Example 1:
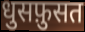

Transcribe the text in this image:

धुसफ़ुसत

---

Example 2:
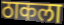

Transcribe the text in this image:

ठाकला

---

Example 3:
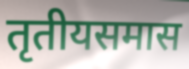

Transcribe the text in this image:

तृतीयसमास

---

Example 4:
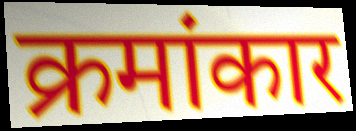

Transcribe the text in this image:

क्रमांकार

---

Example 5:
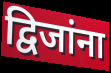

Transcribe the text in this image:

द्विजांना